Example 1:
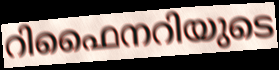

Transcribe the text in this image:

റിഫൈനറിയുടെ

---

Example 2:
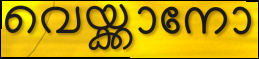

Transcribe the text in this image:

വെയ്ക്കാനോ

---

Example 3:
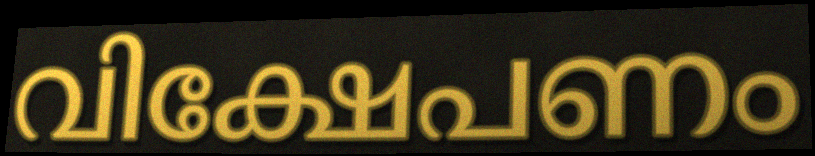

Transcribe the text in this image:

വിക്ഷേപണം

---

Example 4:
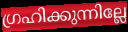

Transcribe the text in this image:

ഗ്രഹിക്കുന്നില്ലേ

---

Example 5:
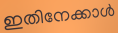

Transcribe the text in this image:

ഇതിനേക്കാൾ